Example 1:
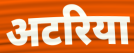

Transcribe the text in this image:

अटरिया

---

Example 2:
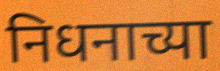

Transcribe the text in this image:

निधनाच्या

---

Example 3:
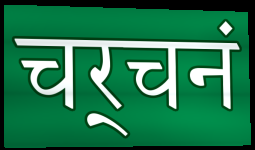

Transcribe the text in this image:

चर्चनं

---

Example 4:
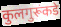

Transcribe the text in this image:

कुलगुरूंकडे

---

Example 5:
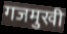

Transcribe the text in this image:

गजमुखी